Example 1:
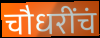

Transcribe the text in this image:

चौधरींचं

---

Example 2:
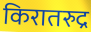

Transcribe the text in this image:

किरातरुद्र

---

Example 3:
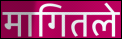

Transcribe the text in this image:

मागितले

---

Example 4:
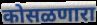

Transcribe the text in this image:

कोसळणारा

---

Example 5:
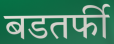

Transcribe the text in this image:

बडतर्फी